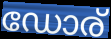
ഡോര്